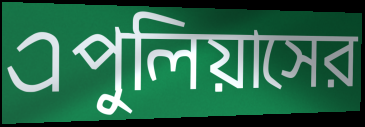
এপুলিয়াসের